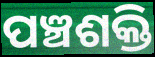
ପଞ୍ଚଶକ୍ତି